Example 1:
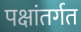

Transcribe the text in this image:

पक्षांतर्गत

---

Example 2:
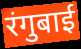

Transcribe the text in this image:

रंगुबाई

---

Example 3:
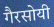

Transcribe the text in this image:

गैरसोयी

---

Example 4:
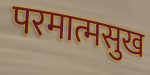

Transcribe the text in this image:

परमात्मसुख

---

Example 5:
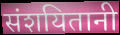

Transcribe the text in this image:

संशयितानी